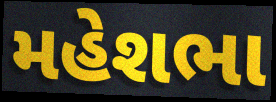
મહેશભા